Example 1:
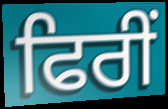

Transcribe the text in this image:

ਫਿਰੀਂ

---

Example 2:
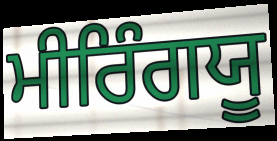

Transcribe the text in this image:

ਮੀਰਿੰਗਯੂ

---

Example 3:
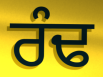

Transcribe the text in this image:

ਰੰਢ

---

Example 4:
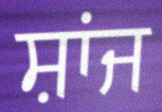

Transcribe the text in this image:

ਸ਼ਾਂਜ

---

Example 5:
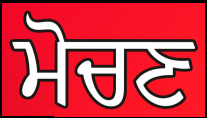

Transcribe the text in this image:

ਮੋਚਣ